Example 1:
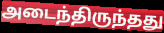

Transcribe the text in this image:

அடைந்திருந்தது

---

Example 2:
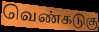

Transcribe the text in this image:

வெண்கடுகு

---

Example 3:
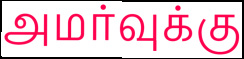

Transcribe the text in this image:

அமர்வுக்கு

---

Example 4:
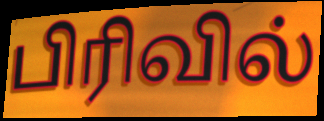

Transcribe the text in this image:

பிரிவில்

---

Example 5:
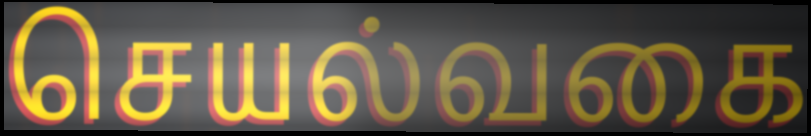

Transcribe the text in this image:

செயல்வகை